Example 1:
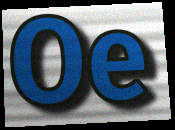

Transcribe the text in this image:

Oe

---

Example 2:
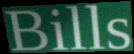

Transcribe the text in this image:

Bills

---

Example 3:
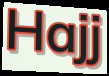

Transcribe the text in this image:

Hajj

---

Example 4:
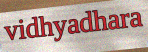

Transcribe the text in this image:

vidhyadhara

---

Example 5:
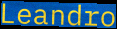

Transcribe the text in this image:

Leandro